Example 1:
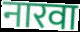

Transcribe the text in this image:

नारवा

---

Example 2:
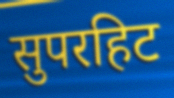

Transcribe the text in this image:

सुपरहिट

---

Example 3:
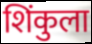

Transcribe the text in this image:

शिंकुला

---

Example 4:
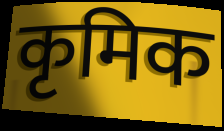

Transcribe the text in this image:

कृमिक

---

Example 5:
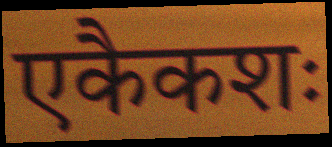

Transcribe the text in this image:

एकैकशः